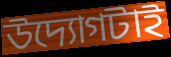
উদ্যোগটাই